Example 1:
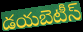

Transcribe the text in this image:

డయబెటీస్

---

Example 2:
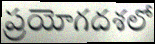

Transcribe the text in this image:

ప్రయోగదశలో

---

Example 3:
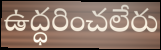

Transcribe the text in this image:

ఉద్ధరించలేరు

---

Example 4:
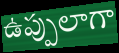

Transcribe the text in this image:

ఉప్పులాగా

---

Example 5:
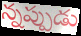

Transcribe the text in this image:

న్నప్పుడు